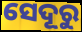
ସେଦୂରୁ